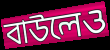
বাউলেও